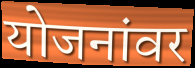
योजनांवर